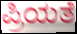
ಪ್ರಿಯತೆ